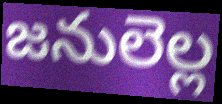
జనులెల్ల